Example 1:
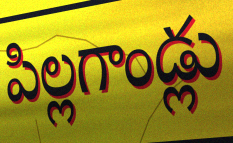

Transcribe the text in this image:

పిల్లగాండ్లు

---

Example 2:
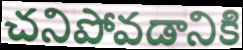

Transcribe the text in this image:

చనిపోవడానికి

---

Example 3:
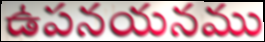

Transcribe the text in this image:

ఉపనయనము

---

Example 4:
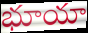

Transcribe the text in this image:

భూయా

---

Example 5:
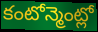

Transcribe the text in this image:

కంటోన్మెంట్లో